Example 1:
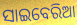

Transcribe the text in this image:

ସାଇବେରିଆ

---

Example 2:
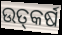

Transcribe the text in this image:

ଉତ୍‌କର୍ଷ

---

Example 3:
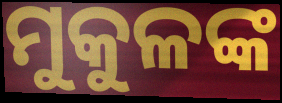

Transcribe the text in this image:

ମୁକୁଳଙ୍କ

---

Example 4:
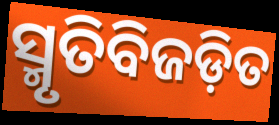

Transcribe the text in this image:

ସ୍ମୃତିବିଜଡ଼ିତ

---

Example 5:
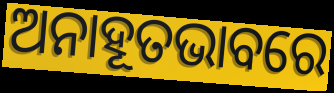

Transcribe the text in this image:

ଅନାହୂତଭାବରେ